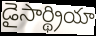
డైసార్థ్రియా